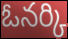
ఓనర్కి